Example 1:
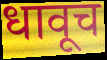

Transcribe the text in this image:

धावूच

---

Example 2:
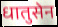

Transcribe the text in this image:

धातुसेन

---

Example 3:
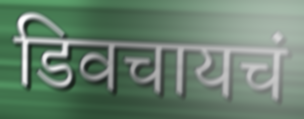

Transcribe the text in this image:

डिवचायचं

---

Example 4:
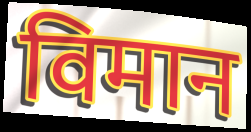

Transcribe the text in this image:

विमान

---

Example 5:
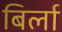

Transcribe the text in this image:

बिर्ला